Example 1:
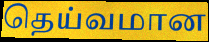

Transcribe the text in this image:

தெய்வமான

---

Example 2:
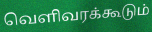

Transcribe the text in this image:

வெளிவரக்கூடும்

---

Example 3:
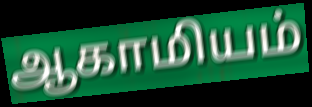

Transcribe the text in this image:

ஆகாமியம்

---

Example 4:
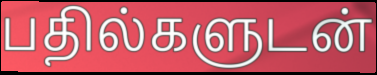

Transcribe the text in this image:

பதில்களுடன்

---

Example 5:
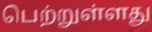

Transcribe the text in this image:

பெற்றுள்ளது